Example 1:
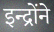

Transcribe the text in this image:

इन्द्रोंने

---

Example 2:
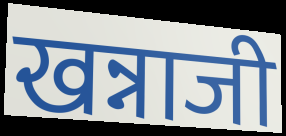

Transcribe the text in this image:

खन्नाजी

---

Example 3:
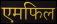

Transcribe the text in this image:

एमफिल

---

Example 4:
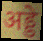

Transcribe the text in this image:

अड्डे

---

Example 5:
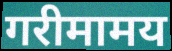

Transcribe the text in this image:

गरीमामय